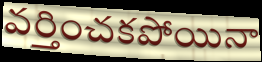
వర్తించకపోయినా